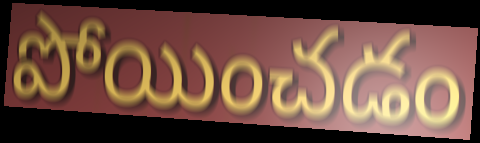
పోయించడం